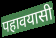
पहावयासी